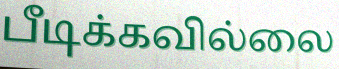
பீடிக்கவில்லை